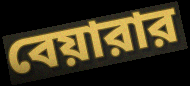
বেয়ারার